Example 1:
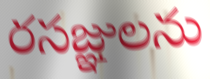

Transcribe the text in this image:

రసజ్ఞులను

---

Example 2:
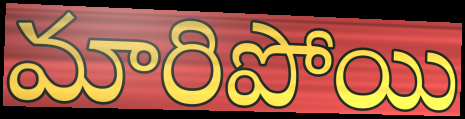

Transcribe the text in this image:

మారిపోయి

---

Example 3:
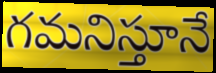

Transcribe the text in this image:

గమనిస్తూనే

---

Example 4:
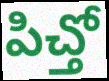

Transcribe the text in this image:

పిచ్తో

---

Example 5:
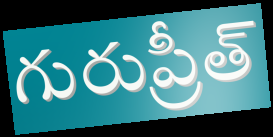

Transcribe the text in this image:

గురుప్రీత్